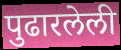
पुढारलेली